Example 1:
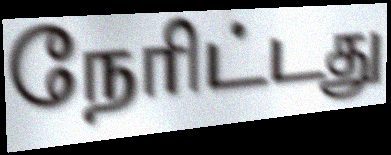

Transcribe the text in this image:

நேரிட்டது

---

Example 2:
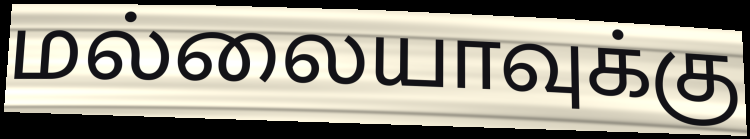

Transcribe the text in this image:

மல்லையாவுக்கு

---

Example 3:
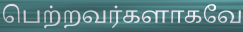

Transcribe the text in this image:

பெற்றவர்களாகவே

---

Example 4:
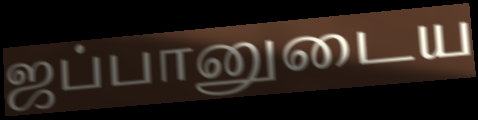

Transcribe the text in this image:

ஜப்பானுடைய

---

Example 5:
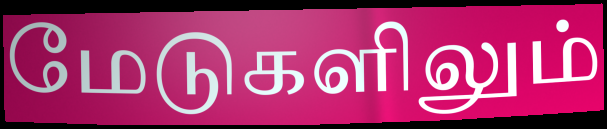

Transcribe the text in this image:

மேடுகளிலும்